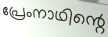
പ്രേംനാഥിന്റെ